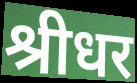
श्रीधर